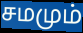
சமமும்